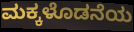
ಮಕ್ಕಳೊಡನೆಯ